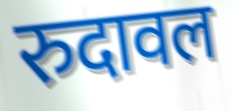
रुदावल